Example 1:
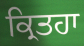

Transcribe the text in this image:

ਕ੍ਰਿਤਹਾ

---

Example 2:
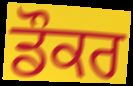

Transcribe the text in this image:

ਡੌਕਰ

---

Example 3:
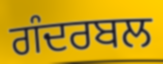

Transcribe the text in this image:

ਗੰਦਰਬਲ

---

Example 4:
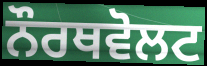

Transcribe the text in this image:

ਨੌਰਥਵੋਲਟ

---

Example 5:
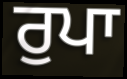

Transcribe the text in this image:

ਰੁਪਾ